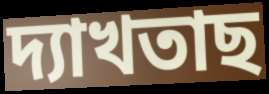
দ্যাখতাছ